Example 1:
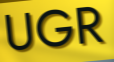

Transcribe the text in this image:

UGR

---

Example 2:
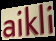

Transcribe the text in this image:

aikli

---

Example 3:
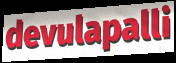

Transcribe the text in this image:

devulapalli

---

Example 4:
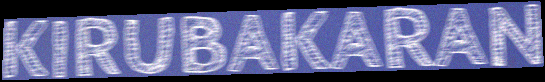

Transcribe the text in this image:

KIRUBAKARAN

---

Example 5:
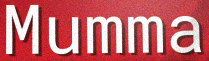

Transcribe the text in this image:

Mumma